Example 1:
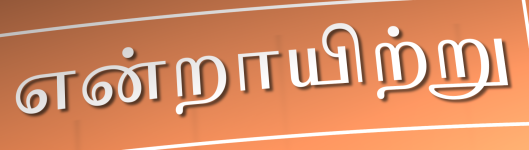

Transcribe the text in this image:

என்றாயிற்று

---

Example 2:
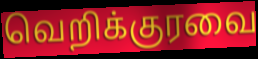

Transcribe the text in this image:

வெறிக்குரவை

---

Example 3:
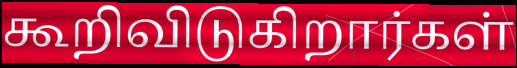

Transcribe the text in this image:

கூறிவிடுகிறார்கள்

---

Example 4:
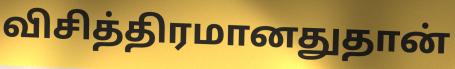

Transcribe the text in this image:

விசித்திரமானதுதான்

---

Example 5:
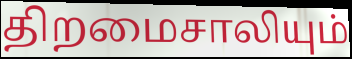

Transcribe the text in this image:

திறமைசாலியும்